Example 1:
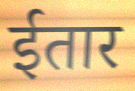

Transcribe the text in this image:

ईतार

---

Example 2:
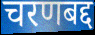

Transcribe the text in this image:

चरणबद्द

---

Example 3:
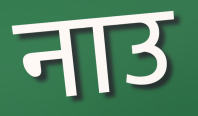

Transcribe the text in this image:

नाउ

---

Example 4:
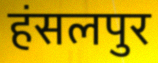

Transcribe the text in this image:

हंसलपुर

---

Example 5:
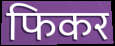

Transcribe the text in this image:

फिकर